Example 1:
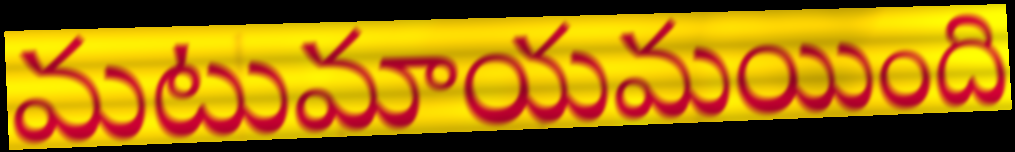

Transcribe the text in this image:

మటుమాయమయింది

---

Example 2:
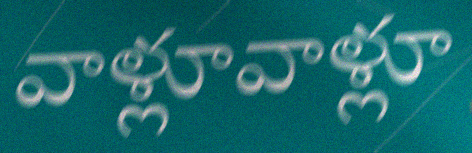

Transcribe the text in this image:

వాళ్లూవాళ్లూ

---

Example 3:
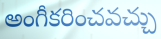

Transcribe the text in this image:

అంగీకరించవచ్చు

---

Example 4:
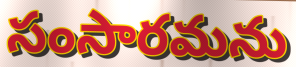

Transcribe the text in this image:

సంసారమను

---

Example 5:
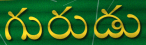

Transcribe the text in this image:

గురుడు